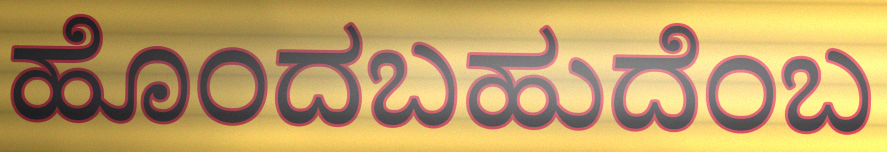
ಹೊಂದಬಹುದೆಂಬ